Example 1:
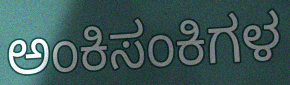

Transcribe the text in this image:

ಅಂಕಿಸಂಕಿಗಳ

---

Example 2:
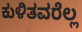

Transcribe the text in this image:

ಕುಳಿತವರೆಲ್ಲ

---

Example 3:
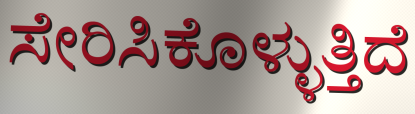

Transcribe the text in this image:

ಸೇರಿಸಿಕೊಳ್ಳುತ್ತಿದೆ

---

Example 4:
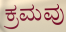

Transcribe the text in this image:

ಕ್ರಮವು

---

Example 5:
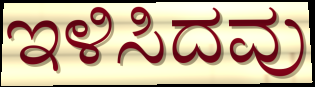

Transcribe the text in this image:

ಇಳಿಸಿದವು